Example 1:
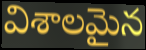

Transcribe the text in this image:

విశాలమైన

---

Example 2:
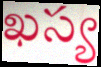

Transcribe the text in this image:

ఖస్య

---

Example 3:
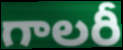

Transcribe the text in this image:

గాలరీ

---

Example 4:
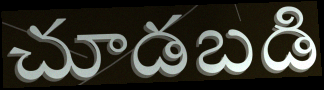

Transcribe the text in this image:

చూడబడి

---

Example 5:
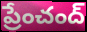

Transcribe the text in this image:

ప్రేంచంద్